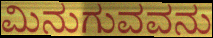
ಮಿನುಗುವವನು